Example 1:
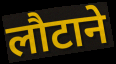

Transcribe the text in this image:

लौटाने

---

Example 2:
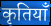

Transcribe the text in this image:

कृतियाँ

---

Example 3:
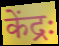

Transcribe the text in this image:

केंद्रः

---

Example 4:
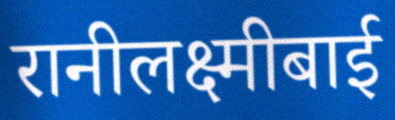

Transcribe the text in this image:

रानीलक्ष्मीबाई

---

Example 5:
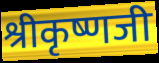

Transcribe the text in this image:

श्रीकृष्णजी